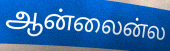
ஆன்லைன்ல